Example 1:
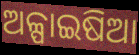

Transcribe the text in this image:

ଅଳ୍ପାଇଷିଆ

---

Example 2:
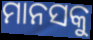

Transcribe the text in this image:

ମାନସକୁ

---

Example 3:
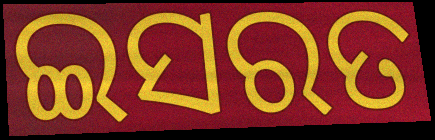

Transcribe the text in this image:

ଇସରତ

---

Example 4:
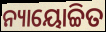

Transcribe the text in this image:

ନ୍ୟାୟୋଚ୍ଚିତ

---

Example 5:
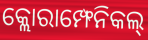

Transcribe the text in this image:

କ୍ଲୋରାମ୍ଫେନିକଲ୍